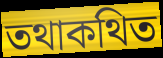
তথাকথিত